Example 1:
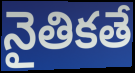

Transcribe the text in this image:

నైతికతే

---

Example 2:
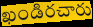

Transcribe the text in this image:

ఖండిరచారు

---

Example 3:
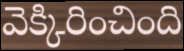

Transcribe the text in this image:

వెక్కిరించింది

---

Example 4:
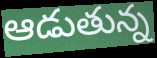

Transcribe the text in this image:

ఆడుతున్న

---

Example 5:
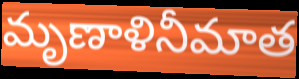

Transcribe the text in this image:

మృణాళినీమాత